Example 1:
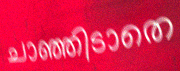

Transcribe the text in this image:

ചാഞ്ഞിടാതെ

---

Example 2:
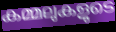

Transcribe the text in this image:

കമ്മലുകളുടെ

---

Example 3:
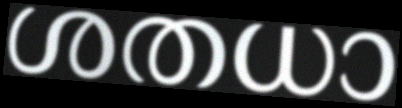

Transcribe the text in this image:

ശതധാ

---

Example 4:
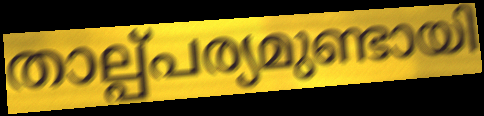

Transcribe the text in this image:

താല്പ്പര്യമുണ്ടായി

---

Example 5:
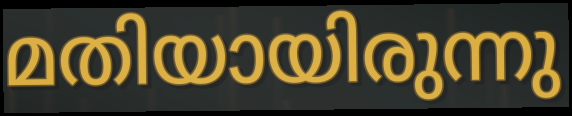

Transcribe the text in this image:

മതിയായിരുന്നു